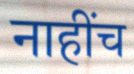
नाहींच